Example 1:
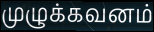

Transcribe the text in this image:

முழுக்கவனம்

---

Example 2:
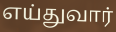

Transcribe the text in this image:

எய்துவார்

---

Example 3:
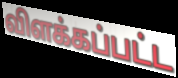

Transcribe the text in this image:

விளக்கப்பட்ட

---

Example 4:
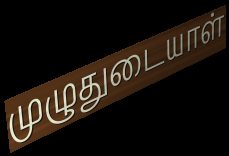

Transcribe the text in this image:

முழுதுடையாள்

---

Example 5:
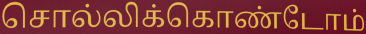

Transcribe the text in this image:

சொல்லிக்கொண்டோம்